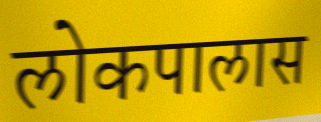
लोकपालास